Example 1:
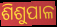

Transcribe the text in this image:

ଶିଶୁପାଳ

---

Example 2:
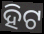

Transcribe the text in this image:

ହିଟ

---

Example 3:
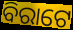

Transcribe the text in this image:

ବିରାଟେ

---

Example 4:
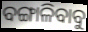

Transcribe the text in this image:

ବଙ୍ଗାଳିବାବୁ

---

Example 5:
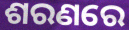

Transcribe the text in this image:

ଶରଣରେ